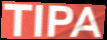
TIPA